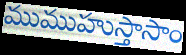
ముముహుస్తాసాం